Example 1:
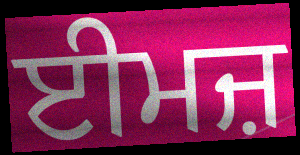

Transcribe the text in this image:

ਈਮਜ਼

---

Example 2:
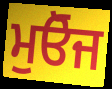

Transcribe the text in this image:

ਮੁਓੋਜ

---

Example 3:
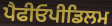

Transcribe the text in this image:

ਪੈਫੀਓਪੀਡਿਲਮ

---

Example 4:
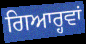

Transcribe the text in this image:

ਗਿਆਰ੍ਹਵਾਂ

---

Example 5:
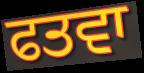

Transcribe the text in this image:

ਫਤਵਾ